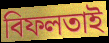
বিফলতাই